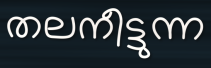
തലനീട്ടുന്ന